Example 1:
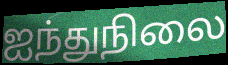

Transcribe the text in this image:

ஐந்துநிலை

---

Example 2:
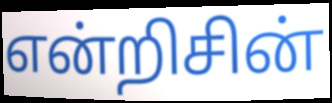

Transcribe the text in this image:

என்றிசின்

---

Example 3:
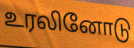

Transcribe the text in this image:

உரலினோடு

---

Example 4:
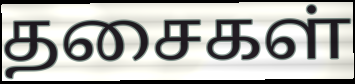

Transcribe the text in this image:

தசைகள்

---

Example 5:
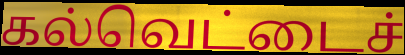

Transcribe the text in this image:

கல்வெட்டைச்